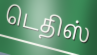
டெதிஸ்